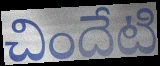
చిందేటి